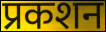
प्रकशन